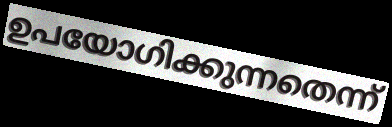
ഉപയോഗിക്കുന്നതെന്ന്